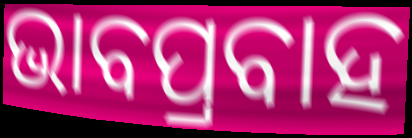
ଭାବପ୍ରବାହ